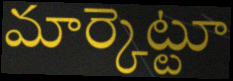
మార్కెట్టూ